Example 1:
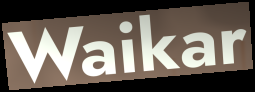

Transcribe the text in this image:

Waikar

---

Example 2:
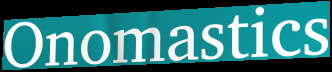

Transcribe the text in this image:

Onomastics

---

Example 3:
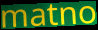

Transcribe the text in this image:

matno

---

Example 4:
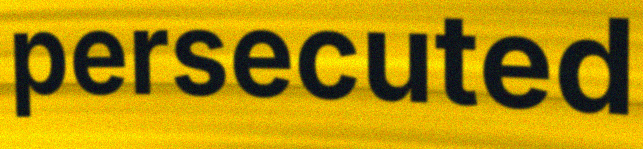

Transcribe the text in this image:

persecuted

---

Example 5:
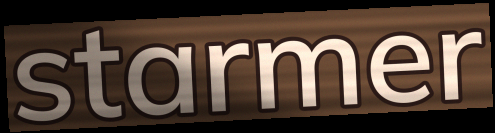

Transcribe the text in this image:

starmer